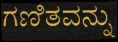
ಗಣಿತವನ್ನು